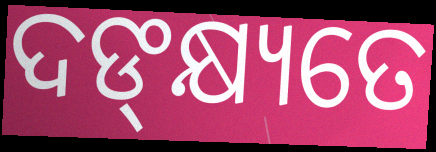
ଦଙ୍କ୍ଷ୍ଯତେ